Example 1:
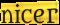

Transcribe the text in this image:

nicer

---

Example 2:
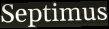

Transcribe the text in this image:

Septimus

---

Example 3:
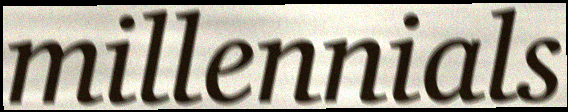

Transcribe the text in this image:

millennials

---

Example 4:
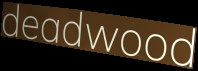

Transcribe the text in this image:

deadwood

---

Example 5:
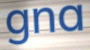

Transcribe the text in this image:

gna